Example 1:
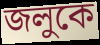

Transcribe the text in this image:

জলুকে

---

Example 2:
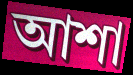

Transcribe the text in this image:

আশা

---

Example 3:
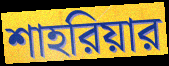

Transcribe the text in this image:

শাহরিয়ার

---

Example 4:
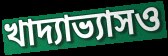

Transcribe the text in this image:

খাদ্যাভ্যাসও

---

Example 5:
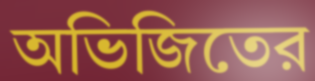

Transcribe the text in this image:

অভিজিতের